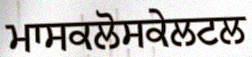
ਮਾਸਕਲੋਸਕੇਲਟਲ